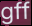
gff